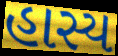
હાસ્ય